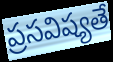
ప్రసవిష్యతే